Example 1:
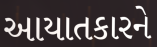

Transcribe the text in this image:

આયાતકારને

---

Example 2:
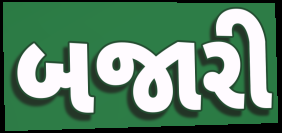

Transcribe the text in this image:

બજારી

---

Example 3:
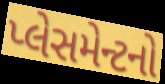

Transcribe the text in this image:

પ્લેસમેન્ટનો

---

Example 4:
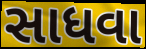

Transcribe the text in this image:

સાધવા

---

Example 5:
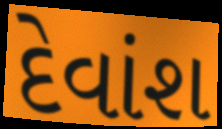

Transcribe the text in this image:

દેવાંશ